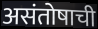
असंतोषाची